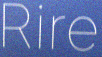
Rire